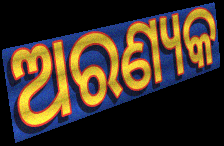
ଅରଣ୍ୟକ